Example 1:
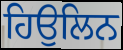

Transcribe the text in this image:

ਹਿਉਲਿਨ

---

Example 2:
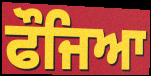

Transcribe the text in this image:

ਫੌਜਿਆ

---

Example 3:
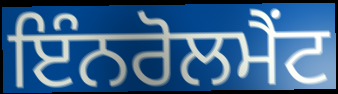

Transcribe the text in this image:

ਇੰਨਰੋਲਮੈਂਟ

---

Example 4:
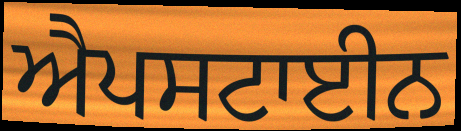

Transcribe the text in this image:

ਐਪਸਟਾਈਨ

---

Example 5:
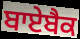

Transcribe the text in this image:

ਬਾਏਬੈਕ